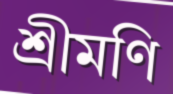
শ্রীমণি